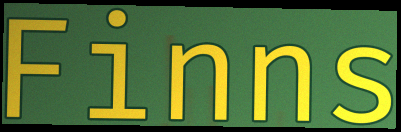
Finns